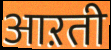
आऱती